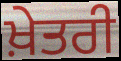
ਖ਼ੇਤਰੀ